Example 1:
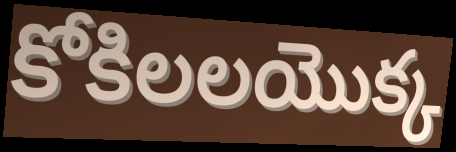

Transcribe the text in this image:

కోకిలలయొక్క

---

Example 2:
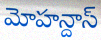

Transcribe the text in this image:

మోహన్దాస్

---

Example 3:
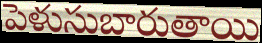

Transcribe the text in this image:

పెళుసుబారుతాయి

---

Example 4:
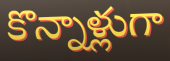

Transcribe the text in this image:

కొన్నాళ్లుగా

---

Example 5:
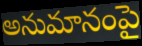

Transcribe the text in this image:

అనుమానంపై